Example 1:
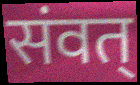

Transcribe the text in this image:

संवत्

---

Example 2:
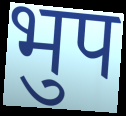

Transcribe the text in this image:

भुप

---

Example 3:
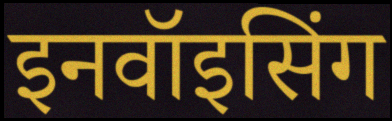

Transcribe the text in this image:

इनवॉइसिंग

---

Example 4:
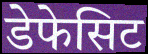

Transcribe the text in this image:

डेफेसिट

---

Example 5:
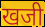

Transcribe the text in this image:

खजी